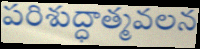
పరిశుద్ధాత్మవలన